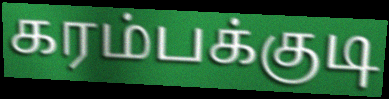
கரம்பக்குடி